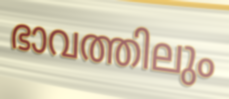
ഭാവത്തിലും